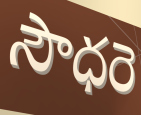
సౌధరె